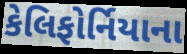
કેલિફોર્નિયાના